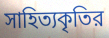
সাহিত্যকৃতির